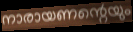
നാരായണന്റെയും